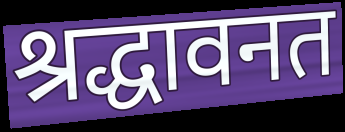
श्रद्धावनत